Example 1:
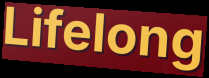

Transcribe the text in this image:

Lifelong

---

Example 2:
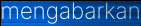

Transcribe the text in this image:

mengabarkan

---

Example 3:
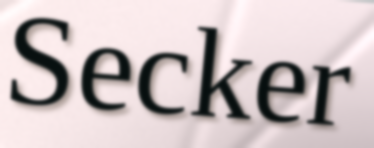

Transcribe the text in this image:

Secker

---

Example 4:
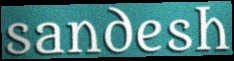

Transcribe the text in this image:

sandesh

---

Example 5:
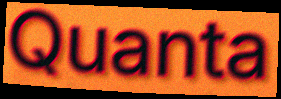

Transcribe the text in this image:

Quanta